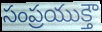
సంప్రయుక్తౌ